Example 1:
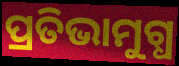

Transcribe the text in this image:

ପ୍ରତିଭାମୁଗ୍ଧ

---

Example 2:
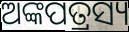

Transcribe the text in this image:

ଅଙ୍କପତ୍ରସ୍ୟ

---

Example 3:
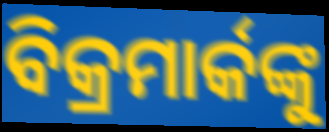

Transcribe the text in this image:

ବିକ୍ରମାର୍କଙ୍କୁ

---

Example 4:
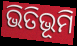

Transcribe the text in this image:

ଭିତିଭୂମି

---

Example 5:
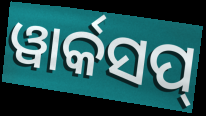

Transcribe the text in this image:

ୱାର୍କସପ୍